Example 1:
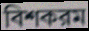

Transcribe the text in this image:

বিশকরম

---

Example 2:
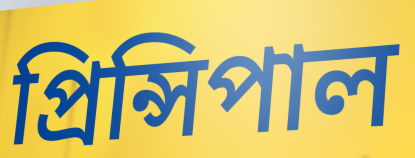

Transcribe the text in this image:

প্রিন্সিপাল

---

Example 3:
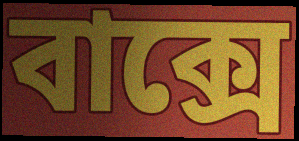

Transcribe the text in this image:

বাক্সে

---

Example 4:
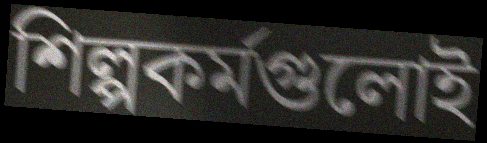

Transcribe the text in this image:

শিল্পকর্মগুলোই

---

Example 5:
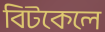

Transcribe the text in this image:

বিটকেলে